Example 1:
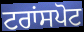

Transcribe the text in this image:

ਟਰਾਂਸਪੋਟ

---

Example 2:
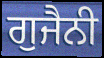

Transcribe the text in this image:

ਗੁਜੈਨੀ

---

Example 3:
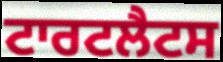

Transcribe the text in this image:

ਟਾਰਟਲੈਟਸ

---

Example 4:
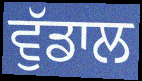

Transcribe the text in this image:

ਵੁੱਡਾਲ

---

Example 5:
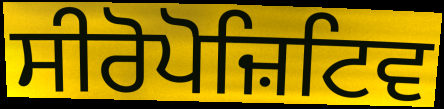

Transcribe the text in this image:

ਸੀਰੋਪੋਜ਼ਿਟਿਵ